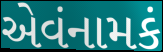
એવંનામકં